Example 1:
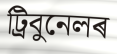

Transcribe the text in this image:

ট্ৰিবুনেলৰ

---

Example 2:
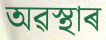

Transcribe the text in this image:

অৱস্থাৰ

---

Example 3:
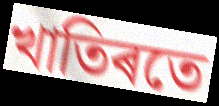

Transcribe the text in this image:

খাতিৰতে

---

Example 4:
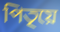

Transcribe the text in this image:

পিতৃয়ে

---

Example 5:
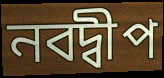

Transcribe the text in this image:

নবদ্বীপ